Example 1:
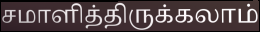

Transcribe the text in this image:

சமாளித்திருக்கலாம்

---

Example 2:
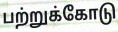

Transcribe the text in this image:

பற்றுக்கோடு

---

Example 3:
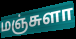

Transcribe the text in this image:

மஞ்சுளா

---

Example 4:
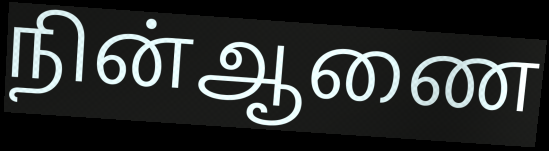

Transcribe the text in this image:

நின்ஆணை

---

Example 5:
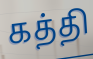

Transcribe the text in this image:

கத்தி